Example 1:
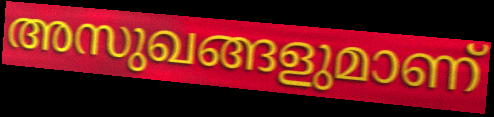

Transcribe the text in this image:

അസുഖങ്ങളുമാണ്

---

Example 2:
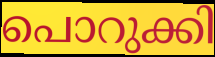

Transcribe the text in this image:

പൊറുക്കി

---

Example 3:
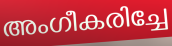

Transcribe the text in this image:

അംഗീകരിച്ചേ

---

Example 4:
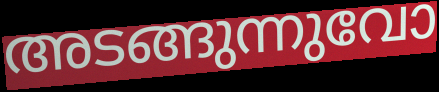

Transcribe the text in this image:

അടങ്ങുന്നുവോ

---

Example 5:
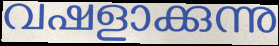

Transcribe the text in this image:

വഷളാക്കുന്നു